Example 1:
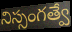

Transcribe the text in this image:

నిస్సంగత్వే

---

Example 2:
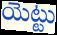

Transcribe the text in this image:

యెట్టు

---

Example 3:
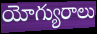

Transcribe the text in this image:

యోగ్యురాలు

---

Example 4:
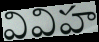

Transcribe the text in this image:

వివిహ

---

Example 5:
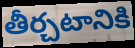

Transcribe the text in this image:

తీర్చటానికి